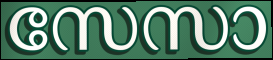
സേസാ